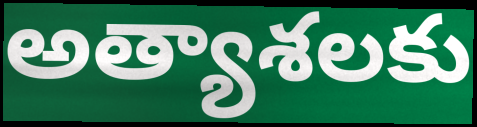
అత్యాశలకు